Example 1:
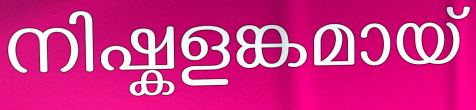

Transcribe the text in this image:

നിഷ്കളങ്കമായ്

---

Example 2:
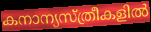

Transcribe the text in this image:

കനാന്യസ്ത്രീകളിൽ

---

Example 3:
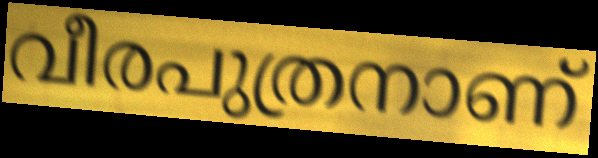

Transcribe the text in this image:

വീരപുത്രനാണ്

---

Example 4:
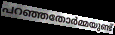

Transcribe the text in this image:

പറഞ്ഞതോർമ്മയുണ്ട്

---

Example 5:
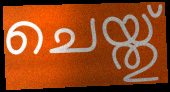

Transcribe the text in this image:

ചെയ്തു്